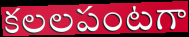
కలలపంటగా